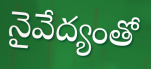
నైవేద్యంతో